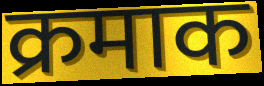
क्रमाक